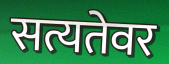
सत्यतेवर